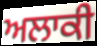
ਅਲਾਕੀ